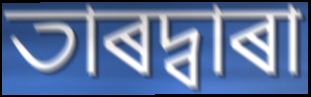
তাৰদ্বাৰা